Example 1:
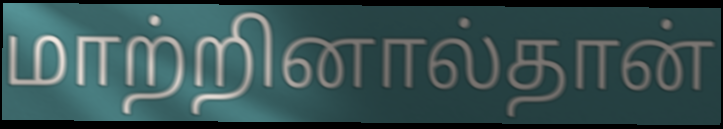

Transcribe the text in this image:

மாற்றினால்தான்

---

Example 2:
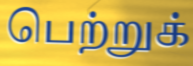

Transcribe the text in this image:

பெற்றுக்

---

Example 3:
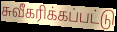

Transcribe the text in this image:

சுவீகரிக்கப்பட்டு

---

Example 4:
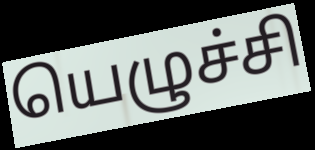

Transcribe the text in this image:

யெழுச்சி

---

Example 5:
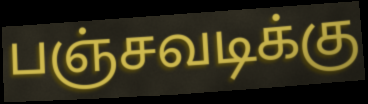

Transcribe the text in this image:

பஞ்சவடிக்கு